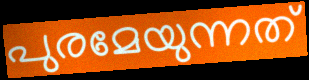
പുരമേയുന്നത്